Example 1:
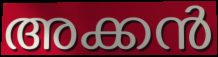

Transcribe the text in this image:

അക്കൻ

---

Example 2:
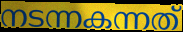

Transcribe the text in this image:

നടന്നകന്നത്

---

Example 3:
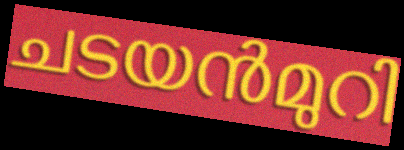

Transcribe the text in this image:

ചടയൻമുറി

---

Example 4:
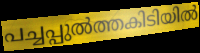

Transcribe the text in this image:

പച്ചപ്പുൽത്തകിടിയിൽ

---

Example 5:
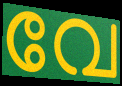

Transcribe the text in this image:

വേ